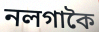
নলগাকৈ